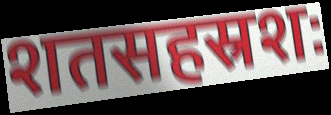
शतसहस्रशः